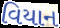
વિયાન